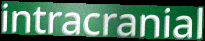
intracranial